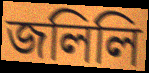
জলিলি